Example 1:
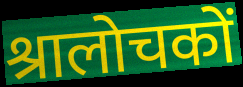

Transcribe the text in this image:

श्रालोचकों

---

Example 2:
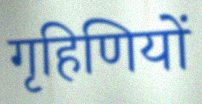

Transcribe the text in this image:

गृहिणियों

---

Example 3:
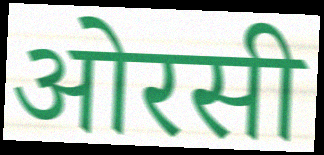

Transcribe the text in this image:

ओरसी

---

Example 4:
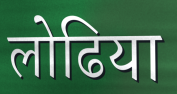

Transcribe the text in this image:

लोढिया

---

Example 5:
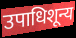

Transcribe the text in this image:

उपाधिशून्य